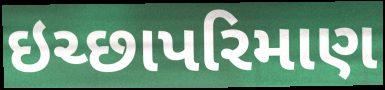
ઇચ્છાપરિમાણ